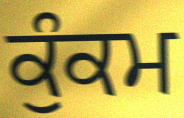
ਕੁੰਕਮ